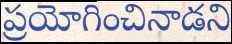
ప్రయోగించినాడని